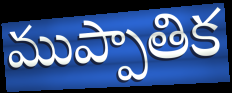
ముప్పాతిక